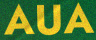
AUA